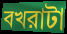
বখরাটা